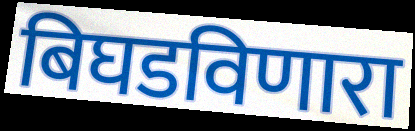
बिघडविणारा